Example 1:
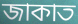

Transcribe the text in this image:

জাকাত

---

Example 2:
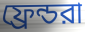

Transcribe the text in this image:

ফ্রেন্ডরা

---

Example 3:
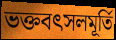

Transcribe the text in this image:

ভক্তবৎসলমূর্তি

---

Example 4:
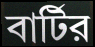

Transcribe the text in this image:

বার্টির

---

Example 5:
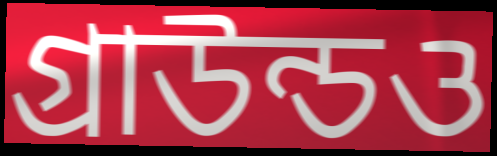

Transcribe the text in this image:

গ্রাউন্ডও